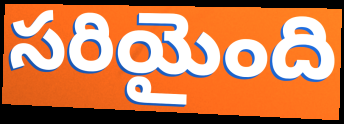
సరియైంది